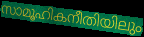
സാമൂഹികനീതിയിലും